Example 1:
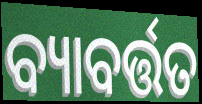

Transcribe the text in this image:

ବ୍ୟାବର୍ତ୍ତତ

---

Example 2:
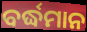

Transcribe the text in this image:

ବର୍ଦ୍ଧମାନ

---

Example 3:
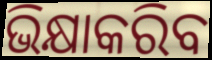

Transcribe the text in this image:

ଭିକ୍ଷାକରିବ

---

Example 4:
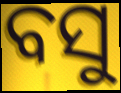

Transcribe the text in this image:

ବସୁ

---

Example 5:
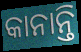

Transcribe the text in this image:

କାନାନ୍ତି